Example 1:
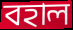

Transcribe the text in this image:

বহাল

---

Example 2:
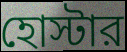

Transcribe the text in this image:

হোস্টার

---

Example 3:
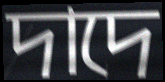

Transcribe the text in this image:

দাদে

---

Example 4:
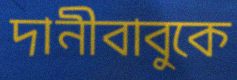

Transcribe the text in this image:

দানীবাবুকে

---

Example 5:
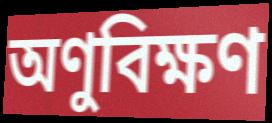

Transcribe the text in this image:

অণুবিক্ষণ